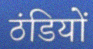
ठंडियों